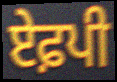
ਏਫ਼ਪੀ